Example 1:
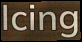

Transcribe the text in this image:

Icing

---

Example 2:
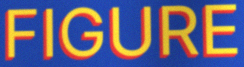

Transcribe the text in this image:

FIGURE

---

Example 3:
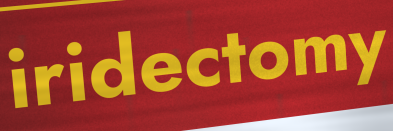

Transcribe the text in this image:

iridectomy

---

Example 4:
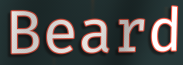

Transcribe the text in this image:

Beard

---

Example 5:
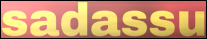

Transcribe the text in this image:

sadassu